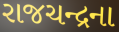
રાજચન્દ્રના